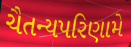
ચૈતન્યપરિણામે